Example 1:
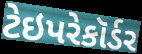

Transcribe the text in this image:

ટેઇપરેકૉર્ડર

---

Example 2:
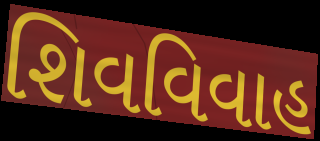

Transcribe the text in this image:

શિવવિવાહ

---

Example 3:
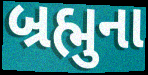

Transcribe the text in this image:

બ્રહ્મુના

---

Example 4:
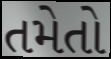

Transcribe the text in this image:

તમેતો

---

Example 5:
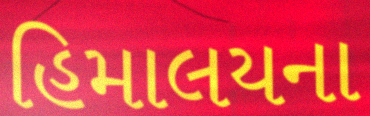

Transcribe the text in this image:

હિમાલયના